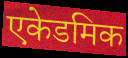
एकेडमिक